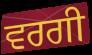
ਵਰਗੀ